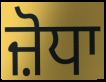
ਜ਼ੋਧਾ